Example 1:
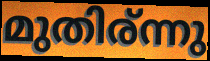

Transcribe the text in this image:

മുതിര്ന്നു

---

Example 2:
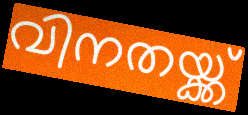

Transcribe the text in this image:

വിനതയ്ക്ക്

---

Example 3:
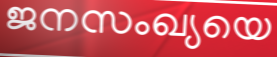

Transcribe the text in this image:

ജനസംഖ്യയെ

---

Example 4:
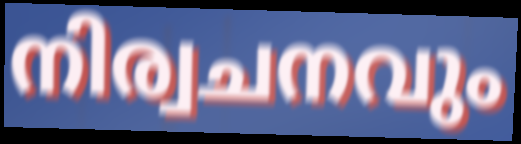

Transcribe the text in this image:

നിര്വചനവും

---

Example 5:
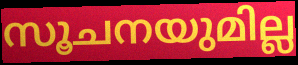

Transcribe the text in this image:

സൂചനയുമില്ല